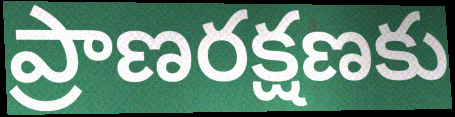
ప్రాణరక్షణకు